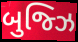
બુજ્ઝિ